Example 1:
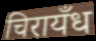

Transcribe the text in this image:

चिरायँध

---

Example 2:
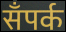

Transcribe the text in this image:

सँपर्क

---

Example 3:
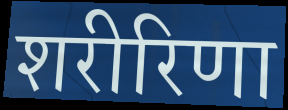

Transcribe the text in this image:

शरीरिणा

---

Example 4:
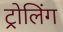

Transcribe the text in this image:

ट्रोलिंग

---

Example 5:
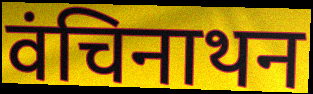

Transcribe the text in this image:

वंचिनाथन